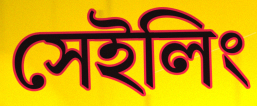
সেইলিং